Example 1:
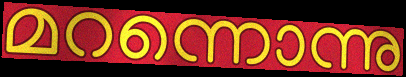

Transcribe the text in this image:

മറന്നൊന്നു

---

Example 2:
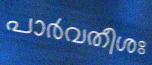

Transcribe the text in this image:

പാർവതീശഃ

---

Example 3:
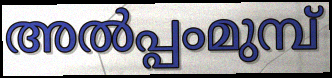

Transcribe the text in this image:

അൽപ്പംമുമ്പ്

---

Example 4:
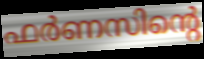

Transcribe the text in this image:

ഫർണസിന്റെ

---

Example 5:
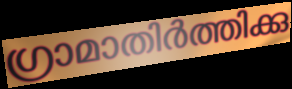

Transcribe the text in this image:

ഗ്രാമാതിർത്തിക്കു